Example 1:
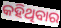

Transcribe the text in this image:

କହିଥିବାର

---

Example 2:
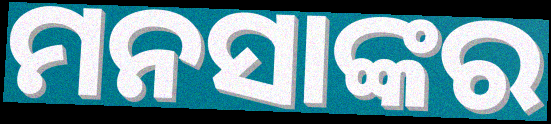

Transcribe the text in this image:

ମନସାଙ୍କର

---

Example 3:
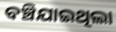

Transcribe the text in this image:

ବଞ୍ଚିଯାଇଥିଲା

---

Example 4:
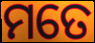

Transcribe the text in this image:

ମତେ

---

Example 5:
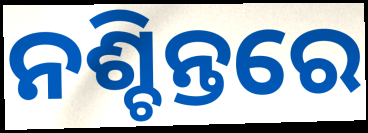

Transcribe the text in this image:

ନଶ୍ଚିନ୍ତରେ